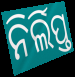
ନିର୍ଲିପ୍ତ